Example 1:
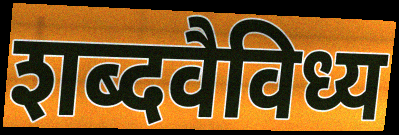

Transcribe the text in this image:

शब्दवैविध्य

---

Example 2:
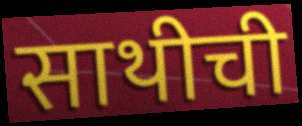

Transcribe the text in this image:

साथीची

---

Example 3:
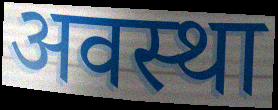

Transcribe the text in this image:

अवस्था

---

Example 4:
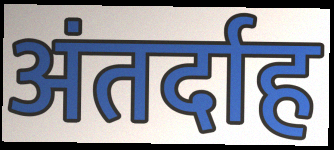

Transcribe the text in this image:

अंतर्दाह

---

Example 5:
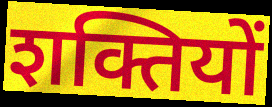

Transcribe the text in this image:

शक्तियों